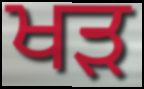
ਖੜ